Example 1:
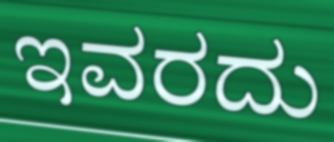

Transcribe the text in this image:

ಇವರದು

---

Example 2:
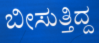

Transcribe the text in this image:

ಬೀಸುತ್ತಿದ್ದ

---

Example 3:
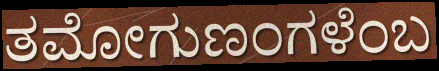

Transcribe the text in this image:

ತಮೋಗುಣಂಗಳೆಂಬ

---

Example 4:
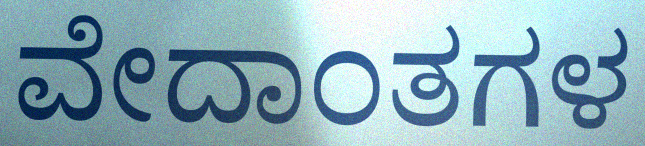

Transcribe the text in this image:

ವೇದಾಂತಗಳ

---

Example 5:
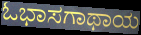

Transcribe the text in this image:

ಓಭಾಸಗಾಥಾಯ